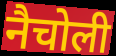
नैचोली